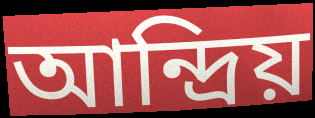
আন্দ্রিয়